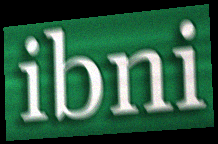
ibni